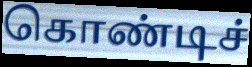
கொண்டிச்